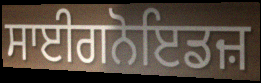
ਸਾਈਗਨੋਇਡਜ਼